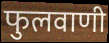
फुलवाणी